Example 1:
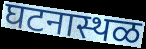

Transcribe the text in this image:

घटनास्थळ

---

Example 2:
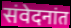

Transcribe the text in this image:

संवेदनांत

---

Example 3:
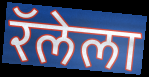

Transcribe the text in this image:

रॅलेला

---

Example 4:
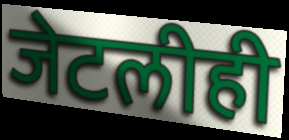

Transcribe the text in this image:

जेटलीही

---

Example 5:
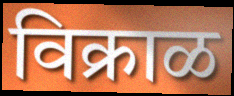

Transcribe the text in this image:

विक्राळ